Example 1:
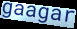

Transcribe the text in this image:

gaagar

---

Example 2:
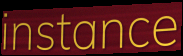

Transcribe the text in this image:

instance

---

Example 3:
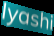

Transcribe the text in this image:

Iyashi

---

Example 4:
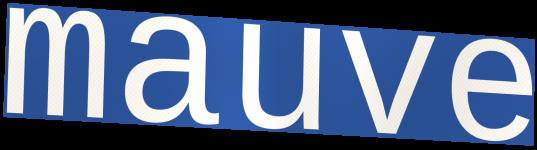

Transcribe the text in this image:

mauve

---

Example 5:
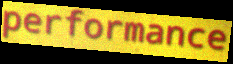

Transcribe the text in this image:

performance